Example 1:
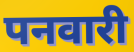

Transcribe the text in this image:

पनवारी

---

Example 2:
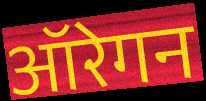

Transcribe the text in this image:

ऑरेगन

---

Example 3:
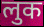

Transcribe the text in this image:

लुक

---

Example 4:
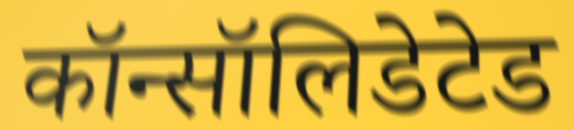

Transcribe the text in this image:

कॉन्सॉलिडेटेड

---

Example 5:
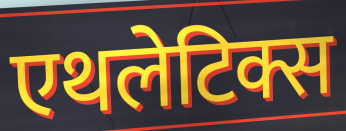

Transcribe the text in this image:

एथलेटिक्स